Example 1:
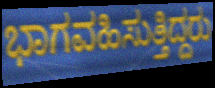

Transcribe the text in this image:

ಭಾಗವಹಿಸುತ್ತಿದ್ದರು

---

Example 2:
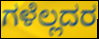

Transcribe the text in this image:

ಗಳೆಲ್ಲದರ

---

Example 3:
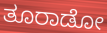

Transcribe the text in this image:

ತೂರಾಡೋ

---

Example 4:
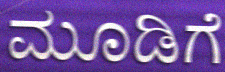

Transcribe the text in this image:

ಮೂಡಿಗೆ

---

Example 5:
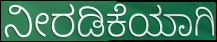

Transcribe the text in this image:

ನೀರಡಿಕೆಯಾಗಿ